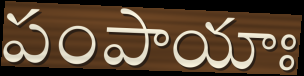
పంపాయాః